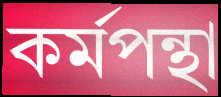
কৰ্মপন্থা